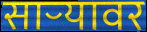
साऱ्यावर